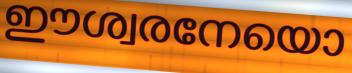
ഈശ്വരനേയൊ